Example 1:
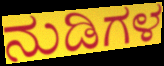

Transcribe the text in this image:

ನುಡಿಗಳ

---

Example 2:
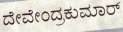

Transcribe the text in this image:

ದೇವೇಂದ್ರಕುಮಾರ್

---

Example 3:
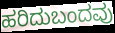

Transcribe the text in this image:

ಹರಿದುಬಂದವು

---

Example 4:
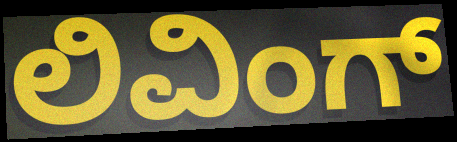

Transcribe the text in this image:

ಲಿವಿಂಗ್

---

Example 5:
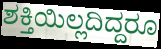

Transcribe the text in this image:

ಶಕ್ತಿಯಿಲ್ಲದಿದ್ದರೂ